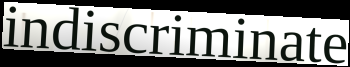
indiscriminate